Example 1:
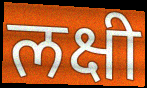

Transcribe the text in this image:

लक्षी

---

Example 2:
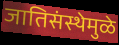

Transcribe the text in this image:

जातिसंस्थेमुळे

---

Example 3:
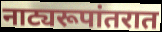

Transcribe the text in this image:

नाट्यरूपांतरात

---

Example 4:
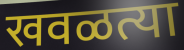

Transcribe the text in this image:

खवळत्या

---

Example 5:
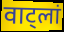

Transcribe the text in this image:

वाट्लां